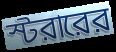
স্টরারের